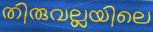
തിരുവല്ലയിലെ